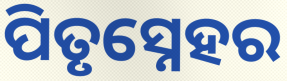
ପିତୃସ୍ନେହର